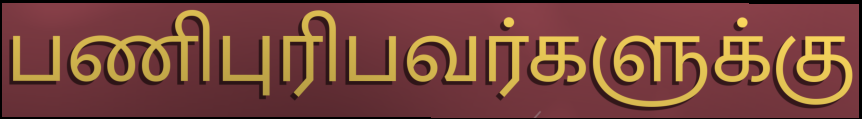
பணிபுரிபவர்களுக்கு